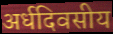
अर्धदिवसीय